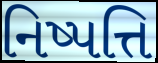
નિષ્પત્તિ